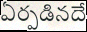
ఏర్పడినదే